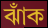
ঝাঁক